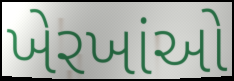
ખેરખાંઓ